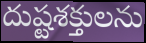
దుష్టశక్తులను